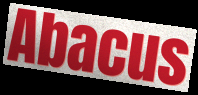
Abacus